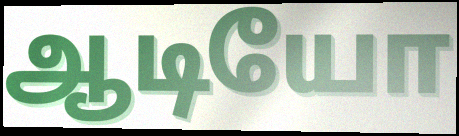
ஆடியோ